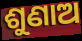
ଶୁଣାଅ